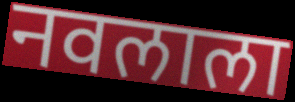
नवलाला